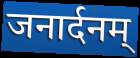
जनार्दनम्